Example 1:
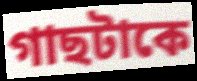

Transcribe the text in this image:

গাছটাকে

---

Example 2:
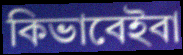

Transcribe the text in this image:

কিভাবেইবা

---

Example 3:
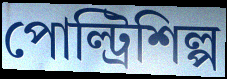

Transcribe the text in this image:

পোল্ট্রিশিল্প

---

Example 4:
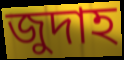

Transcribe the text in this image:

জুদাহ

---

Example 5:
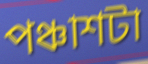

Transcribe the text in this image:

পঞ্চাশটা